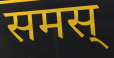
समस्